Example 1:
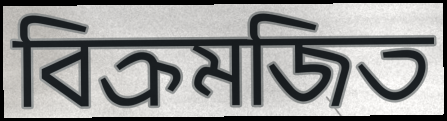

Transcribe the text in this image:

বিক্রমজিত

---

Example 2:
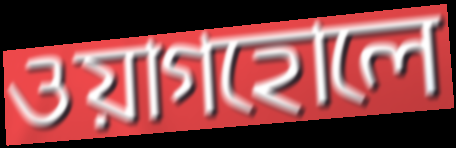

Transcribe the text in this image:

ওয়াগহোলে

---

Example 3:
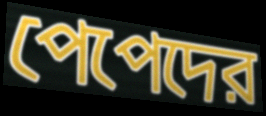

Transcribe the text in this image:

পেপেদের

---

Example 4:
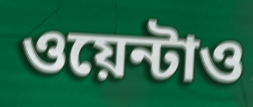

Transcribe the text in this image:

ওয়েন্টাও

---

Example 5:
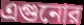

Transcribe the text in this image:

এগুনোর